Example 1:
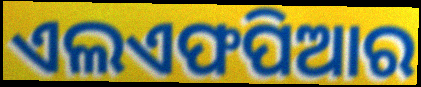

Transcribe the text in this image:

ଏଲଏଫପିଆର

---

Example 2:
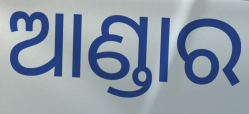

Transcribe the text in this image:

ଆଣ୍ଡାର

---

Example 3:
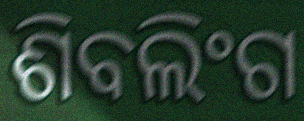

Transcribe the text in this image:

ଶିବଲିଂଗ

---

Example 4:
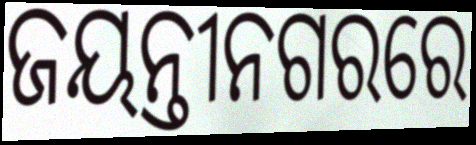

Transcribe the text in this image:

ଜୟନ୍ତୀନଗରରେ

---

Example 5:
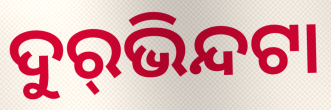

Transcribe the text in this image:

ଦୁର୍‌ଭିନ୍ଦଟା